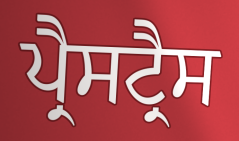
ਪ੍ਰੈਸਟ੍ਰੈਸ